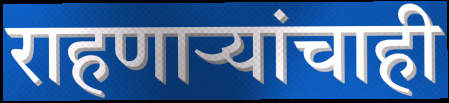
राहणाऱ्यांचाही